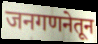
जनगणनेतून